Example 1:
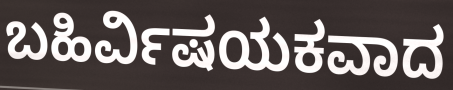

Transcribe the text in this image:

ಬಹಿರ್ವಿಷಯಕವಾದ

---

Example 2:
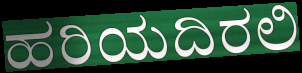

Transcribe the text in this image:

ಹರಿಯದಿರಲಿ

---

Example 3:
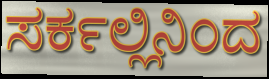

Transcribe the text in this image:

ಸರ್ಕಲ್ಲಿನಿಂದ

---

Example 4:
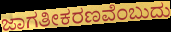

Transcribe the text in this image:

ಜಾಗತೀಕರಣವೆಂಬುದು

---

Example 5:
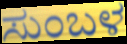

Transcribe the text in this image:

ಸುಂಬಳ